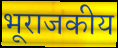
भूराजकीय